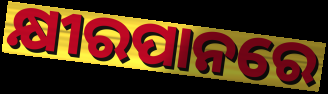
କ୍ଷୀରପାନରେ